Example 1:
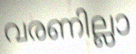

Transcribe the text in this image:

വരണില്ലാ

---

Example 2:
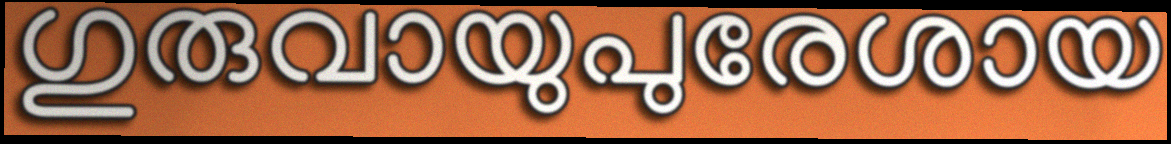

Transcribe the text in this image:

ഗുരുവായുപുരേശായ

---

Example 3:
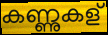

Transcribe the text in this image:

കണ്ണുകള്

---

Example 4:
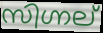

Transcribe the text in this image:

സിഗ്നല്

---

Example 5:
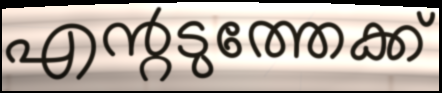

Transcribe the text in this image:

എന്റടുത്തേക്ക്